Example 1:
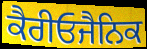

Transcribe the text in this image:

ਕੈਰੀਓਜੈਨਿਕ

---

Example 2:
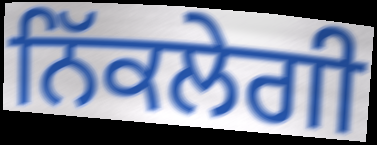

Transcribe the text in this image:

ਨਿੱਕਲੇਗੀ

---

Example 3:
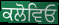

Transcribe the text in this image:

ਕਲੋਵਿਓ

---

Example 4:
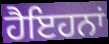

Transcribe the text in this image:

ਹੈਇਹਨਾਂ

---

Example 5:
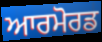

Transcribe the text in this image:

ਆਰਮੋਰਡ